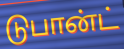
டுபான்ட்